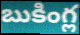
బుకింగ్ల